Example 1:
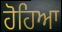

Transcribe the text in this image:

ਹੋਹਿਆ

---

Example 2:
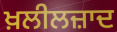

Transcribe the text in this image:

ਖ਼ਲੀਲਜ਼ਾਦ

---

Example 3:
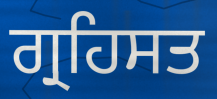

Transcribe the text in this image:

ਗ੍ਰਹਿਸਤ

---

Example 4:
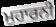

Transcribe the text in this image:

ਮੁਹਾਰਨੀ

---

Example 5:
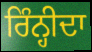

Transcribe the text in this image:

ਰਿੰਨ੍ਹੀਦਾ